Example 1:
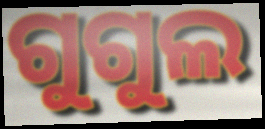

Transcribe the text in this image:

ଗୁଗୁଲ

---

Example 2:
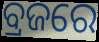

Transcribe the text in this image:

ବ୍ରଜରେ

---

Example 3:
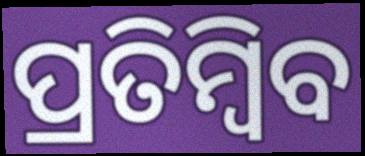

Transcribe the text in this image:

ପ୍ରତିମ୍ବିବ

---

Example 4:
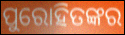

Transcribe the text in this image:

ପୁରୋହିତଙ୍କର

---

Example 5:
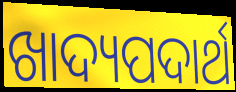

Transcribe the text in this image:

ଖାଦ୍ୟପଦାର୍ଥ